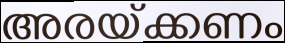
അരയ്‌ക്കണം